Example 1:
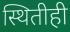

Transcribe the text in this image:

स्थितीही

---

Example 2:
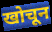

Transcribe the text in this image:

खोचून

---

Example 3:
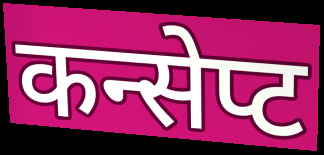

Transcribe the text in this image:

कन्सेप्ट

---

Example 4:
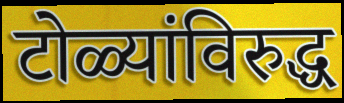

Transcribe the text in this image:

टोळ्यांविरुद्ध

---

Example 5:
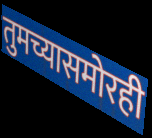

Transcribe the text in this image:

तुमच्यासमोरही